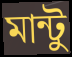
মান্টু